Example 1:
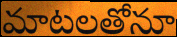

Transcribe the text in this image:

మాటలతోనూ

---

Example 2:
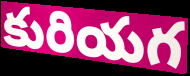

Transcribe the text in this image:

కురియగ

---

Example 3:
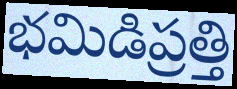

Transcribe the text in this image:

భమిడిప్రత్తి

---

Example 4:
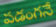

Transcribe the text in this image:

పడంగనే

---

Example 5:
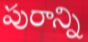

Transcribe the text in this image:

పురాన్ని